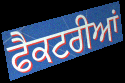
ਫੈਕਟਰੀਆਂ